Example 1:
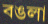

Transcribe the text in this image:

বঙলা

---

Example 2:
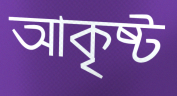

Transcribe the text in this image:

আকৃষ্ট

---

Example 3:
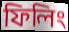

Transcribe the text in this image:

ফিলিং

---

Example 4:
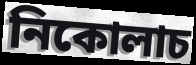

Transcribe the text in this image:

নিকোলাচ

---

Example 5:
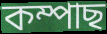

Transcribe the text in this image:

কম্পাছ